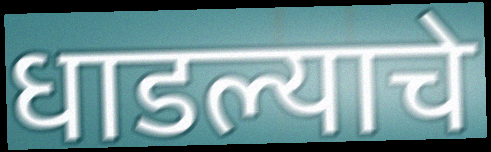
धाडल्याचे